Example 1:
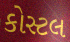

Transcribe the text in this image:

કોસ્ટલ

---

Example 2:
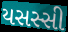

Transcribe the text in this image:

યસસ્સી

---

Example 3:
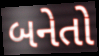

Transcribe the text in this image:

બનેતો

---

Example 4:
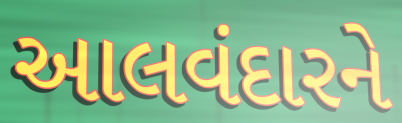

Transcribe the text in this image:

આલવંદારને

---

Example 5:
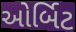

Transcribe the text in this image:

ઓર્બિટ